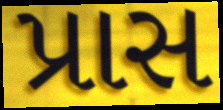
પ્રાસ